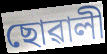
ছোৱালী